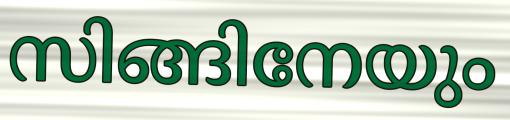
സിങ്ങിനേയും